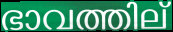
ഭാവത്തില്